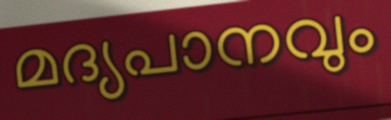
മദ്യപാനവും